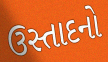
ઉસ્તાદનો